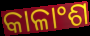
କାଳାଂଶ